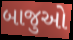
બાજુઓ